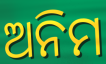
ଅନିମ